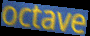
octave